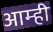
आम्ही